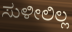
ಸುಳೀಲಿಲ್ಲ